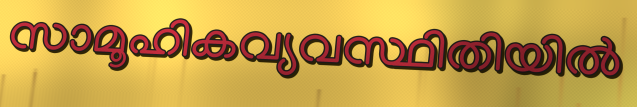
സാമൂഹികവ്യവസ്ഥിതിയിൽ